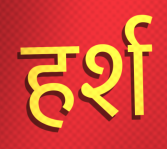
हर्श